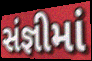
સંજ્ઞીમાં